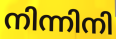
നിന്നിനി